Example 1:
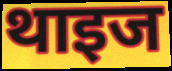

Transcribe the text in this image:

थाइज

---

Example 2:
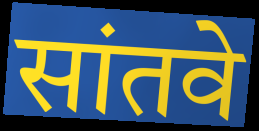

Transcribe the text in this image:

सांतवे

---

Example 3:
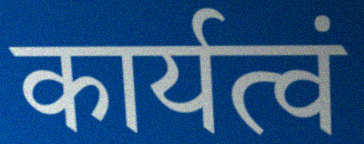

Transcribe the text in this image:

कार्यत्वं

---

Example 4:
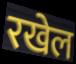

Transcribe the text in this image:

रखेल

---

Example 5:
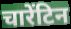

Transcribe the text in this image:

चारेंटिन